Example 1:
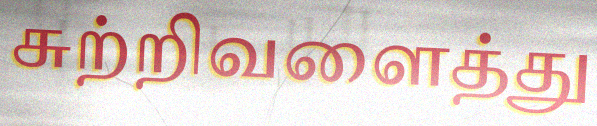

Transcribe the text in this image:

சுற்றிவளைத்து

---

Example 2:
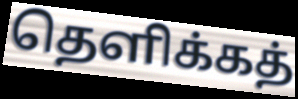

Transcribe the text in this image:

தெளிக்கத்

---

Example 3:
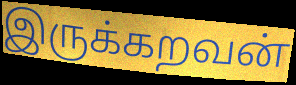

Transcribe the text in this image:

இருக்கறவன்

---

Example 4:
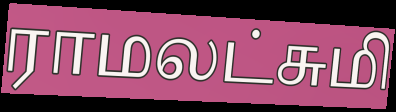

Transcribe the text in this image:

ராமலட்சுமி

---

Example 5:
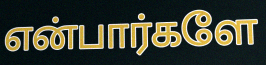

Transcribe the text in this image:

என்பார்களே